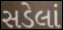
સડેલાં